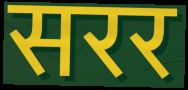
सरर